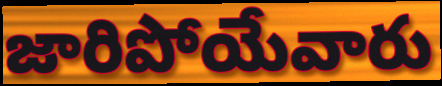
జారిపోయేవారు